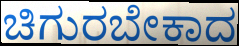
ಚಿಗುರಬೇಕಾದ